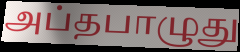
அப்தபாழுது